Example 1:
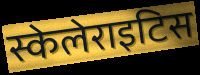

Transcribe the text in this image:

स्केलेराइटिस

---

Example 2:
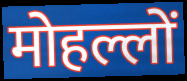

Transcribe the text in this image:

मोहल्लों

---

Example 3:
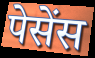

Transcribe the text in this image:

पेसेंस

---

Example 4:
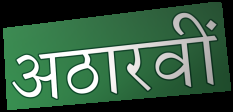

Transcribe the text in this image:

अठारवीं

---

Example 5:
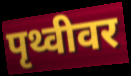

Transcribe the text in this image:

पृथ्वीवर